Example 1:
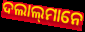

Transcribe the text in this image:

ଦଲାଲ୍‍ମାନେ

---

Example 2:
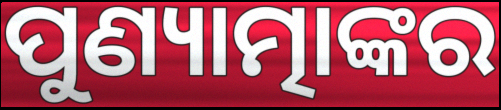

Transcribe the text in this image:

ପୁଣ୍ୟାତ୍ମାଙ୍କର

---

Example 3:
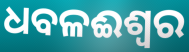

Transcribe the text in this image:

ଧବଳଈଶ୍ବର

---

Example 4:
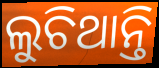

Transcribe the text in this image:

ଲୁଚିଥାନ୍ତି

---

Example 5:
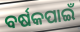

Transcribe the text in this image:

ବର୍ଷକପାଇଁ